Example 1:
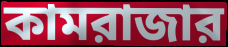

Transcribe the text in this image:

কামরাজার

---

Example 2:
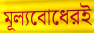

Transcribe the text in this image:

মূল্যবোধেরই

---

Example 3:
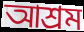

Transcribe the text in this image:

আশ্রম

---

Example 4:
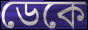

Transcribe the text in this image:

ডেকে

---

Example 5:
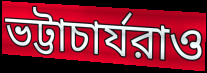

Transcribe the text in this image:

ভট্টাচার্যরাও